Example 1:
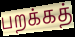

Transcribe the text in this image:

பறக்கத்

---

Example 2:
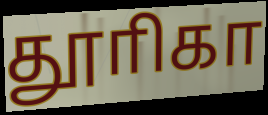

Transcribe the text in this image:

தூரிகா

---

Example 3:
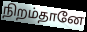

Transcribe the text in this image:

நிறம்தானே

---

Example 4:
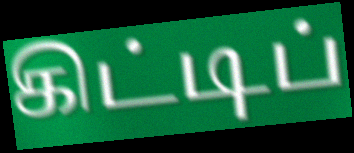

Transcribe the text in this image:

கிட்டிப்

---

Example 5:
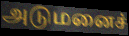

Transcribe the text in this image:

அடுமனைச்